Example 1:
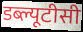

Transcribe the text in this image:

डब्ल्यूटीसी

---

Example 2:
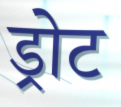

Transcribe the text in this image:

ड्रोट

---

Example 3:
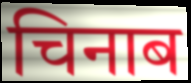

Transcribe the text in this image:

चिनाब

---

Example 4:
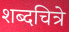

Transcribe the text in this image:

शब्दचित्रे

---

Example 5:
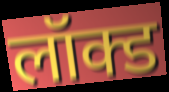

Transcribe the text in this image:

लॉक्ड